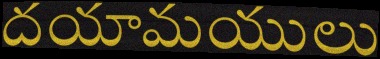
దయామయులు